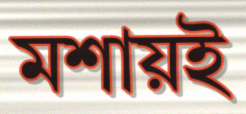
মশায়ই